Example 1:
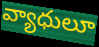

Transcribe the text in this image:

వ్యాధులూ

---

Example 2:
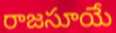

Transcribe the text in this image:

రాజసూయే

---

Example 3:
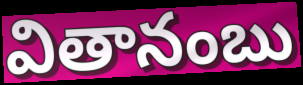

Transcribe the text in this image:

వితానంబు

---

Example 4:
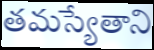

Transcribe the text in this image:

తమస్యేతాని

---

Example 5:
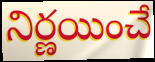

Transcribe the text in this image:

నిర్ణయించే